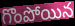
గొంపోయిన